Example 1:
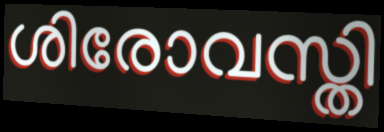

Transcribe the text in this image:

ശിരോവസ്തി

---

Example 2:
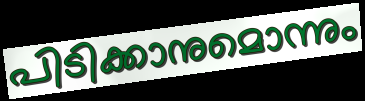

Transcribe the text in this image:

പിടിക്കാനുമൊന്നും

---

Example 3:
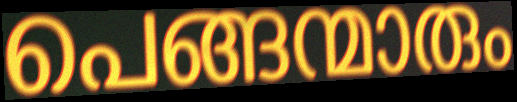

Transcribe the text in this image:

പെങ്ങന്മാരും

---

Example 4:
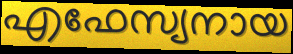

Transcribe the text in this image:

എഫേസ്യനായ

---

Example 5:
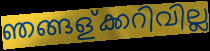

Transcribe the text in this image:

ഞങ്ങള്ക്കറിവില്ല